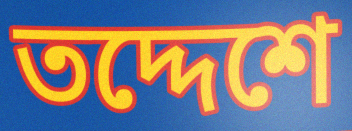
তদ্দেশে